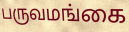
பருவமங்கை